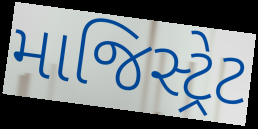
માજિસ્ટ્રેટ